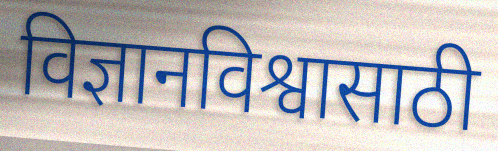
विज्ञानविश्वासाठी